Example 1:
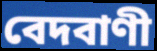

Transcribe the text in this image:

বেদবাণী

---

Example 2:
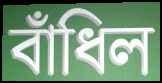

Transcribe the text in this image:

বাঁধিল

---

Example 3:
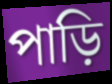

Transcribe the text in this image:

পাড়ি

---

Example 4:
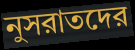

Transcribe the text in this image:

নুসরাতদের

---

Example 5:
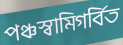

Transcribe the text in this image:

পঞ্চস্বামিগর্বিত